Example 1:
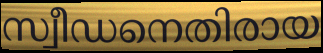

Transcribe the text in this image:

സ്വീഡനെതിരായ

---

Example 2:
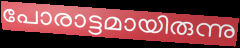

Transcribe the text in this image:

പോരാട്ടമായിരുന്നു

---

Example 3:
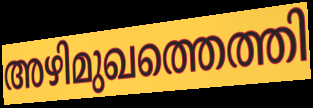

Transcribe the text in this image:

അഴിമുഖത്തെത്തി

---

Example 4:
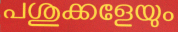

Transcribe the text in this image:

പശുക്കളേയും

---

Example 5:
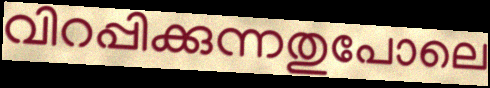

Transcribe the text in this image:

വിറപ്പിക്കുന്നതുപോലെ